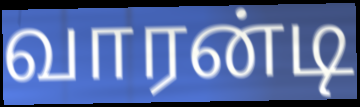
வாரன்டி